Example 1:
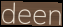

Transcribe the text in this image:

deen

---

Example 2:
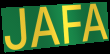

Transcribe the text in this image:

JAFA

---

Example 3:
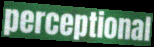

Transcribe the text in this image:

perceptional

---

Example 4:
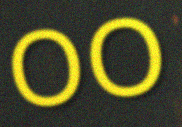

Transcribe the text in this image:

OO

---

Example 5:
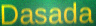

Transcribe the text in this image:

Dasada